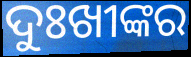
ଦୁଃଖୀଙ୍କର